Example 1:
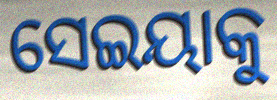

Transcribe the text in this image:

ସେଇୟାକୁ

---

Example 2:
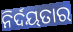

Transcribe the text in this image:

ନିର୍ଦୟତାର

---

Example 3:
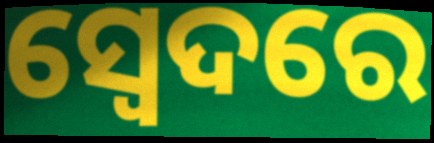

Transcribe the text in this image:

ସ୍ଵେଦରେ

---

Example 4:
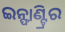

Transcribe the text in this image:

ଇନ୍ଫାଣ୍ଟ୍ରିର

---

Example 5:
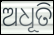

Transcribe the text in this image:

ଅଧୂତି